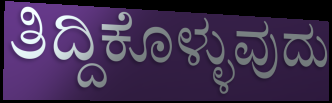
ತಿದ್ದಿಕೊಳ್ಳುವುದು